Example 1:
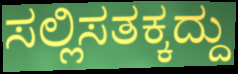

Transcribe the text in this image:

ಸಲ್ಲಿಸತಕ್ಕದ್ದು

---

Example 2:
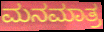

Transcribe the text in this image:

ಮನಮಾತ್ರ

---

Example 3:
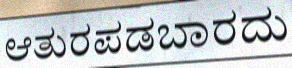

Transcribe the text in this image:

ಆತುರಪಡಬಾರದು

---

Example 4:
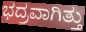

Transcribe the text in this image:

ಭದ್ರವಾಗಿತ್ತು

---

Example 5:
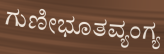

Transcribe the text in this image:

ಗುಣೀಭೂತವ್ಯಂಗ್ಯ